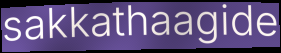
sakkathaagide